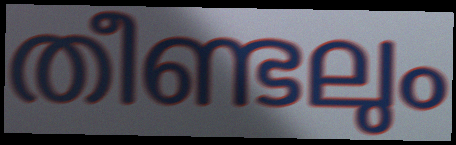
തീണ്ടലും